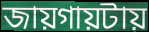
জায়গায়টায়